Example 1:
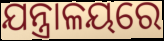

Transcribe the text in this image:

ଯନ୍ତ୍ରାଳୟରେ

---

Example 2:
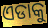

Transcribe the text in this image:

ଏଡାକୁ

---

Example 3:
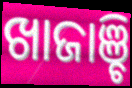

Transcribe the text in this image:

ଖାଜାଞ୍ଚି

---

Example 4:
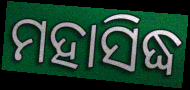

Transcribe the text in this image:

ମହାସିଦ୍ଧ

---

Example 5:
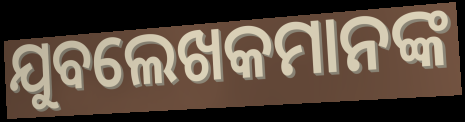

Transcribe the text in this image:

ଯୁବଲେଖକମାନଙ୍କ